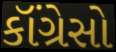
કૉંગ્રેસો